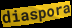
diaspora